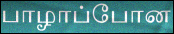
பாழாப்போன